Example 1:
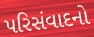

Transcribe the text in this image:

પરિસંવાદનો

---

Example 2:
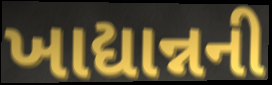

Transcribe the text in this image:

ખાદ્યાન્નની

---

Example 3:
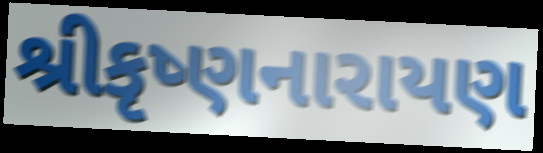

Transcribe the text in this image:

શ્રીકૃષ્ણનારાયણ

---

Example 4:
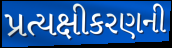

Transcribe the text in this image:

પ્રત્યક્ષીકરણની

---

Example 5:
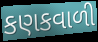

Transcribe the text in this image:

કણકવાળી